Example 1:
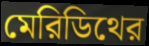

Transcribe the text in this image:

মেরিডিথের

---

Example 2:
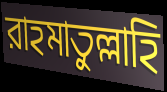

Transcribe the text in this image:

রাহমাতুল্লাহি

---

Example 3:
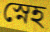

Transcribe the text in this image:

স্নেহ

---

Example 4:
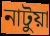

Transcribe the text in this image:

নাটুয়া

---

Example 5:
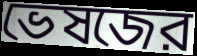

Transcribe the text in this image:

ভেষজের